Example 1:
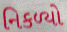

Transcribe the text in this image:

નિકળ્યો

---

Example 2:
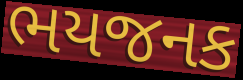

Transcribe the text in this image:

ભયજનક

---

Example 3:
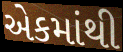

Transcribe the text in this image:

એકમાંથી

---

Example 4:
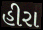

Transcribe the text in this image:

હીરા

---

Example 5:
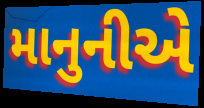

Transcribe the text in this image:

માનુનીએ